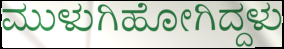
ಮುಳುಗಿಹೋಗಿದ್ದಳು